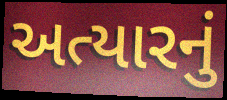
અત્યારનું